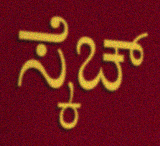
ಸ್ಕೆಚ್